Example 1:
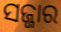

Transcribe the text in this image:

ସଜ୍ଜାର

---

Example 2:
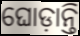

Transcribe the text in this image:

ଘୋଡ଼ାନ୍ତି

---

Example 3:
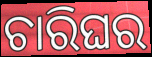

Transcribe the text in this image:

ଚାରିଘର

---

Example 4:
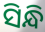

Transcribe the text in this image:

ସିନ୍ଧି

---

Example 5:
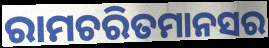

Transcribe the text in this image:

ରାମଚରିତମାନସର